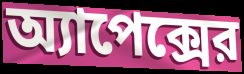
অ্যাপেক্সের